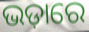
ଭଡ଼ାରେ